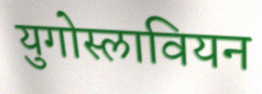
युगोस्लावियन